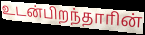
உடன்பிறந்தாரின்